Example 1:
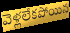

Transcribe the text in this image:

వెళ్లలేకపోయిన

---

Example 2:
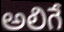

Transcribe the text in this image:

అలిగే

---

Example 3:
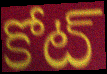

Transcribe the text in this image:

కోట్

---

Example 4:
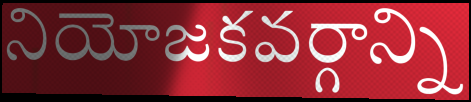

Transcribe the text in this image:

నియోజకవర్గాన్ని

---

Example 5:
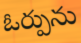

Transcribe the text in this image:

ఓర్పును